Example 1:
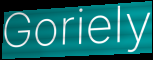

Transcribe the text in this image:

Goriely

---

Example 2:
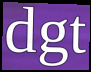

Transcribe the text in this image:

dgt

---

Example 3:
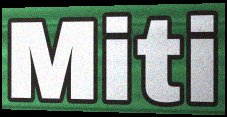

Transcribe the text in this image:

Miti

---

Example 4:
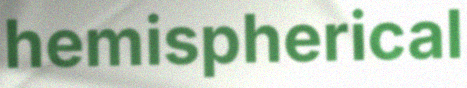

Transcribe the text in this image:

hemispherical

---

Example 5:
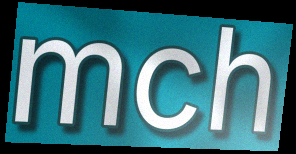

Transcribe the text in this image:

mch